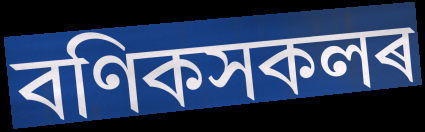
বণিকসকলৰ